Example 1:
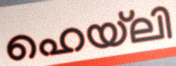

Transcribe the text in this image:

ഹെയ്‌ലി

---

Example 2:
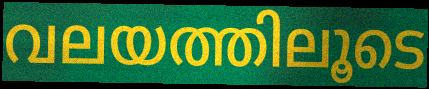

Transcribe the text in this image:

വലയത്തിലൂടെ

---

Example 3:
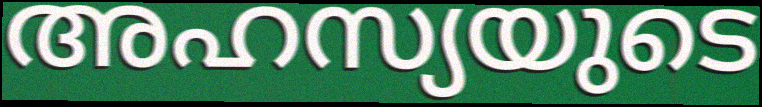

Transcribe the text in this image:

അഹസ്യയുടെ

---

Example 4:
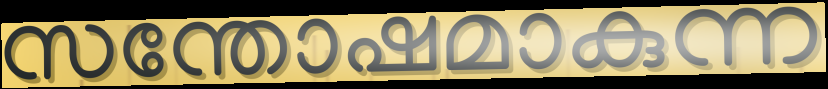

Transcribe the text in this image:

സന്തോഷമാകുന്ന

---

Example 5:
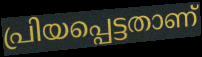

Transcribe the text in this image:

പ്രിയപ്പെട്ടതാണ്